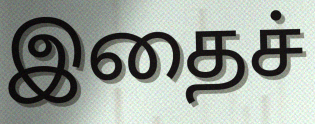
இதைச்